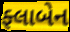
ફ્લાબેન